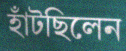
হাঁটছিলেন